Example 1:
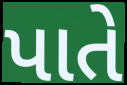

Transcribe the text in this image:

પાતે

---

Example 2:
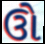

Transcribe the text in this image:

ઉો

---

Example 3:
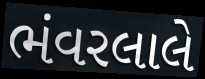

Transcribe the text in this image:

ભંવરલાલે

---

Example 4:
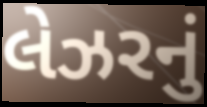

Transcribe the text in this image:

લેઝરનું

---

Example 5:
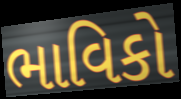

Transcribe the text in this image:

ભાવિકો